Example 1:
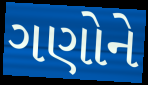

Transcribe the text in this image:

ગણોને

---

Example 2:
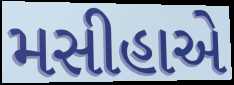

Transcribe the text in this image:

મસીહાએ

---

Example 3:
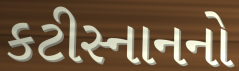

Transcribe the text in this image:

કટીસ્નાનનો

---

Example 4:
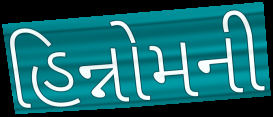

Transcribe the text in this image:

હિન્નોમની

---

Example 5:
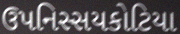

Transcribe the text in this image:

ઉપનિસ્સયકોટિયા